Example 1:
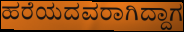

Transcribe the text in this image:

ಹರೆಯದವರಾಗಿದ್ದಾಗ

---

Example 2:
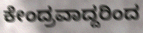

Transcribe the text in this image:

ಕೇಂದ್ರವಾದ್ದರಿಂದ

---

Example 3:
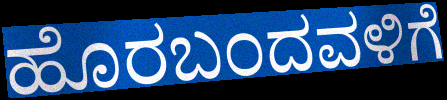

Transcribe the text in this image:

ಹೊರಬಂದವಳಿಗೆ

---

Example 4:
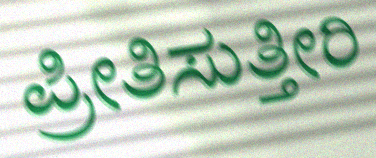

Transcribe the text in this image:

ಪ್ರೀತಿಸುತ್ತೀರಿ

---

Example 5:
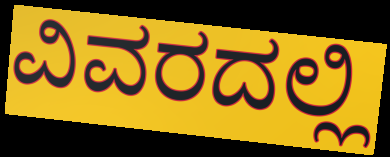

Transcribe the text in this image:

ವಿವರದಲ್ಲಿ